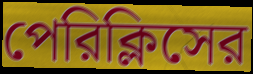
পেরিক্লিসের